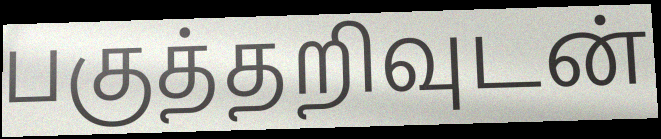
பகுத்தறிவுடன்